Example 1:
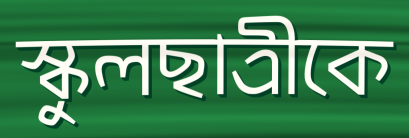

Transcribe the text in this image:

স্কুলছাত্রীকে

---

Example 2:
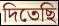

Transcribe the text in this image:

দিতেছি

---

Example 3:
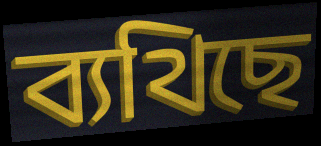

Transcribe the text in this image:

ব্যথিছে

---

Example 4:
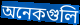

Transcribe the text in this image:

অনেকগুলি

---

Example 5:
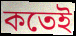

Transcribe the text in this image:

কতেই